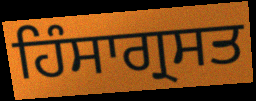
ਹਿੰਸਾਗ੍ਰਸਤ